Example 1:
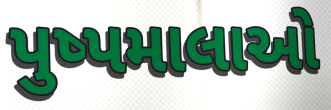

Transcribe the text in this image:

પુષ્પમાલાઓ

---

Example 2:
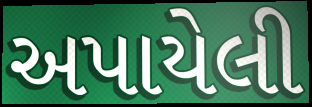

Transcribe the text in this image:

અપાયેલી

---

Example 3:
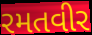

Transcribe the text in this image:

રમતવીર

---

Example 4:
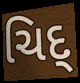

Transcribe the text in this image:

ચિદ્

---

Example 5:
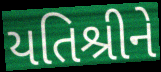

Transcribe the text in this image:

યતિશ્રીને